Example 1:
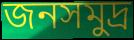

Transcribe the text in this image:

জনসমুদ্র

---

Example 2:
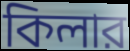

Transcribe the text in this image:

কিলার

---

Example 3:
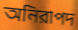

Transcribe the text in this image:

অনিরাপদ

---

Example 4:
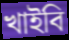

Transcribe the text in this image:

খাইবি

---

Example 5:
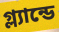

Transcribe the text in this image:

গ্ল্যান্ডে